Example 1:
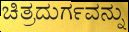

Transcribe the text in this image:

ಚಿತ್ರದುರ್ಗವನ್ನು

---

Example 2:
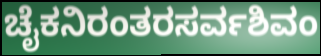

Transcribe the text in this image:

ಚೈಕನಿರಂತರಸರ್ವಶಿವಂ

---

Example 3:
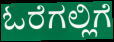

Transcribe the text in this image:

ಓರೆಗಲ್ಲಿಗೆ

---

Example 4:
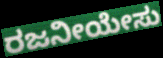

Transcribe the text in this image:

ರಜನೀಯೇಸು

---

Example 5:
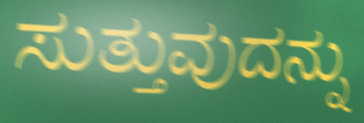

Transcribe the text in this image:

ಸುತ್ತುವುದನ್ನು